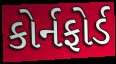
કોર્નફોર્ડ